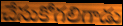
చేసుకోగలిగాడు